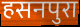
हसनपुरा